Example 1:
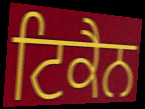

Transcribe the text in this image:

ਟਿਕੈਨ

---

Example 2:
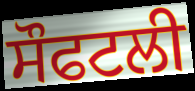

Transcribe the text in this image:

ਸੌਫਟਲੀ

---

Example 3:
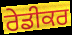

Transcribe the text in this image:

ਰੇਡੀਕਰ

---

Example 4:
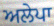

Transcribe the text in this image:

ਅਲੇਪਾ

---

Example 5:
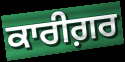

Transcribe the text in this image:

ਕਾਰੀਗ਼ਰ